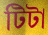
টিটা